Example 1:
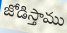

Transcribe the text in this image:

జోడిస్తాము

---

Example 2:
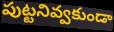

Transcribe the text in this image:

పుట్టనివ్వకుండా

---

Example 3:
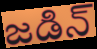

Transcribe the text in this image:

జడిన్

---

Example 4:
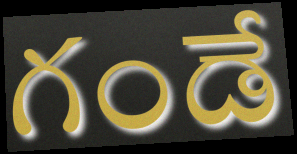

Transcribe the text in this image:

గండే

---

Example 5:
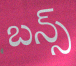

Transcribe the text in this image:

బన్స్